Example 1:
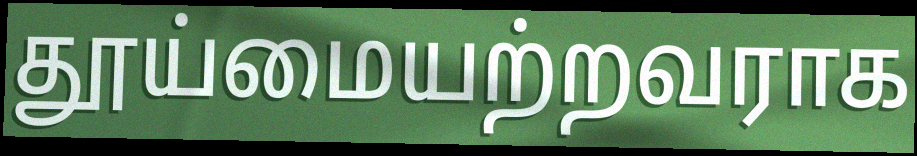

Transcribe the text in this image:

தூய்மையற்றவராக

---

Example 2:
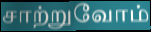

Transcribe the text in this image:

சாற்றுவோம்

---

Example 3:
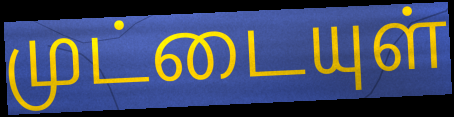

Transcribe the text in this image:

முட்டையுள்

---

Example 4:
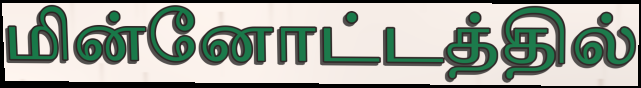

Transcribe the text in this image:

மின்னோட்டத்தில்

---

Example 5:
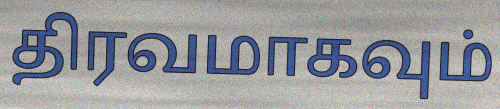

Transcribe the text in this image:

திரவமாகவும்